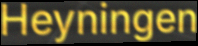
Heyningen